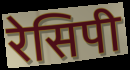
रेसिपी